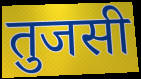
तुजसी